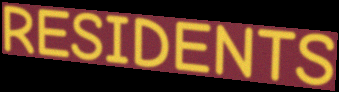
RESIDENTS